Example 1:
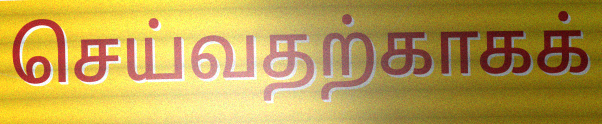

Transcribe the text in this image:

செய்வதற்காகக்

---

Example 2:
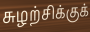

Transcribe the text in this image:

சுழற்சிக்குக்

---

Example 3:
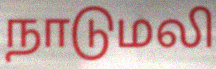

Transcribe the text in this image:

நாடுமலி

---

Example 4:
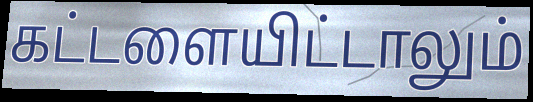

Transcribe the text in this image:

கட்டளையிட்டாலும்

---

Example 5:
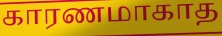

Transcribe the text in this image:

காரணமாகாத